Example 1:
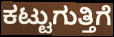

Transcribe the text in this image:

ಕಟ್ಟುಗುತ್ತಿಗೆ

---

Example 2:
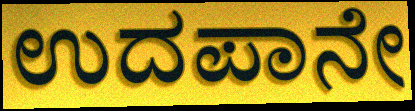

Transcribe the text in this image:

ಉದಪಾನೇ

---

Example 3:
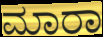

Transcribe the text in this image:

ಮಾರಾ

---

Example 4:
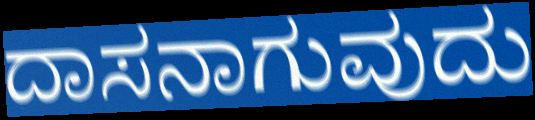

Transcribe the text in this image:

ದಾಸನಾಗುವುದು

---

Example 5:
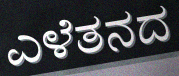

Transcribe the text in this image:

ಎಳೆತನದ